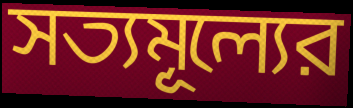
সত্যমূল্যের